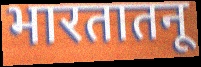
भारतातनू